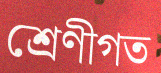
শ্রেণীগত